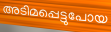
അടിമപ്പെട്ടുപോയ